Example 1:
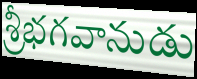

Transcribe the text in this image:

శ్రీభగవానుడు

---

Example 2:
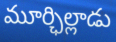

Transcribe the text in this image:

మూర్ఛిల్లాడు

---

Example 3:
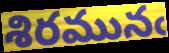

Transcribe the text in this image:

శిరమునఁ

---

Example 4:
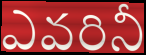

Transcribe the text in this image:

ఎవరినీ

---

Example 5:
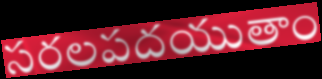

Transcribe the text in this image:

సరలపదయుతాం